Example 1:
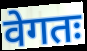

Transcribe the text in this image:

वेगतः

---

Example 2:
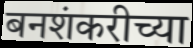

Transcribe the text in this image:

बनशंकरीच्या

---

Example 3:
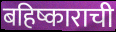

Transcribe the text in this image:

बहिष्काराची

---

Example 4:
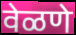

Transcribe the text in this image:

वेळणे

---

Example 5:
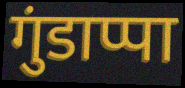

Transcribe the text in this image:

गुंडाप्पा